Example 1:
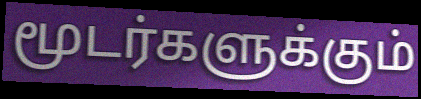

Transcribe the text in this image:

மூடர்களுக்கும்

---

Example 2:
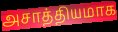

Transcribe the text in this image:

அசாத்தியமாக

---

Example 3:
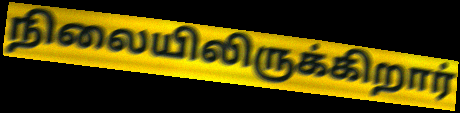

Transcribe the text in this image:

நிலையிலிருக்கிறார்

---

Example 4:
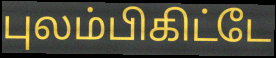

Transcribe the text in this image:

புலம்பிகிட்டே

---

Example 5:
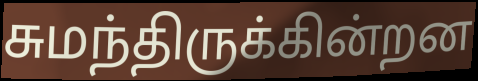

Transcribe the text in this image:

சுமந்திருக்கின்றன